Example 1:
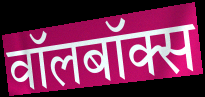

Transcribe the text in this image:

वॉलबॉक्स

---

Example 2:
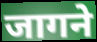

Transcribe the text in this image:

जागने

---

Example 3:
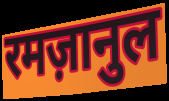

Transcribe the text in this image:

रमज़ानुल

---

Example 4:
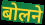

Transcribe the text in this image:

बोलने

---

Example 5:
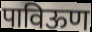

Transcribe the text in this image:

पाविऊण